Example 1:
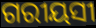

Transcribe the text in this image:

ଗରୀୟସୀ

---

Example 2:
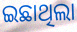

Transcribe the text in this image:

ଇଛାଥିଲା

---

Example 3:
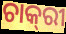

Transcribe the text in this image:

ଚାକ୍‌ରୀ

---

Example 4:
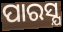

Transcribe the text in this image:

ପାରସ୍ଯ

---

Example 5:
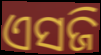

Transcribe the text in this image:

ଏସଜି